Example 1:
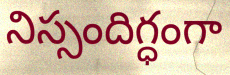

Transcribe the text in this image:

నిస్సందిగ్ధంగా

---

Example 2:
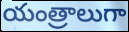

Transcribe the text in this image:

యంత్రాలుగా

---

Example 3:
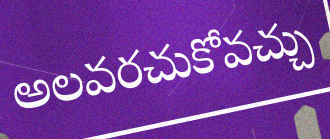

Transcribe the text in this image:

అలవరచుకోవచ్చు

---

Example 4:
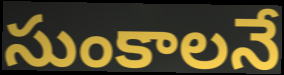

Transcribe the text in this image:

సుంకాలనే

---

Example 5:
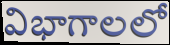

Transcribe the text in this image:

విభాగాలలో